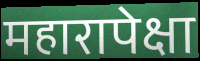
महारापेक्षा